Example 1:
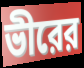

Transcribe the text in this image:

ভীরের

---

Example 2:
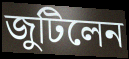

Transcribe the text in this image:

জুটিলেন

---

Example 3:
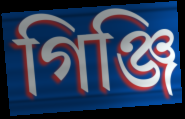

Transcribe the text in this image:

গিঞ্জি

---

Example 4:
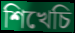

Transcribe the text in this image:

শিখেচি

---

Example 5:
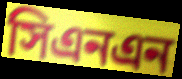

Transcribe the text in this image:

সিএনএন